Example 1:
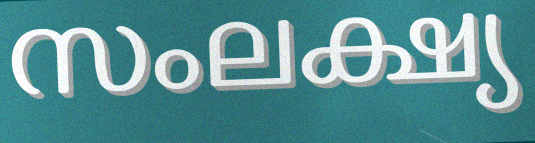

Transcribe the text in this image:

സംലക്ഷ്യ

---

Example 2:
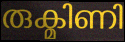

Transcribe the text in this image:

രുക്മിണി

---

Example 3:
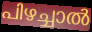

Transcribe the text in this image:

പിഴച്ചാൽ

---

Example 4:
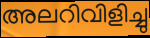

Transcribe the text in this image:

അലറിവിളിച്ചു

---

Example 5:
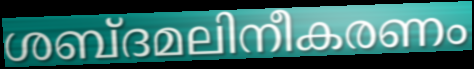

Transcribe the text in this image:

ശബ്ദമലിനീകരണം